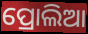
ପ୍ରୋଲିଆ